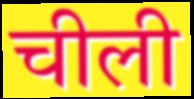
चीली